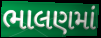
ભાલણમાં